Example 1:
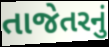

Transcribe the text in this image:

તાજેતરનું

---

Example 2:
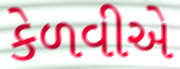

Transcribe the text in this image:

કેળવીએ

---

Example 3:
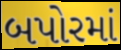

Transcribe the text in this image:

બપોરમાં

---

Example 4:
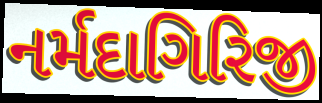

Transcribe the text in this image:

નર્મદાગિરિજી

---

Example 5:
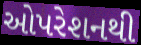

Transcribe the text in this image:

ઓપરેશનથી